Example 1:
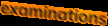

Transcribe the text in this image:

examinations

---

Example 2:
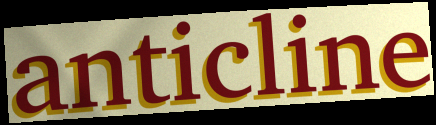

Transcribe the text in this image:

anticline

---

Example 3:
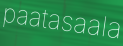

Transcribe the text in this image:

paatasaala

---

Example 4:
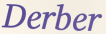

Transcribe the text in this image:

Derber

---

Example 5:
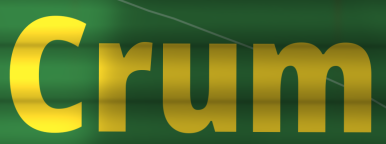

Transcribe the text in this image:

Crum